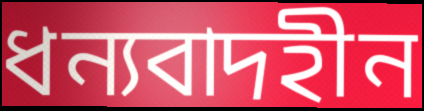
ধন্যবাদহীন